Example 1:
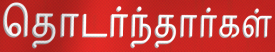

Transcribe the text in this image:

தொடர்ந்தார்கள்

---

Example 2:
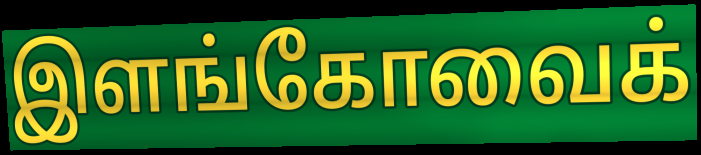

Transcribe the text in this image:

இளங்கோவைக்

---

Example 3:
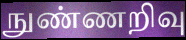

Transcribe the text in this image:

நுண்ணறிவு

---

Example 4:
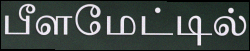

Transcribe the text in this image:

பீளமேட்டில்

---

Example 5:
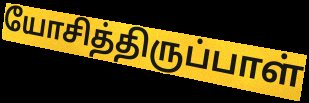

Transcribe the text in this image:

யோசித்திருப்பாள்